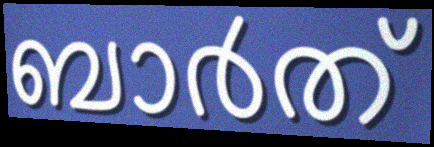
ബാർത്